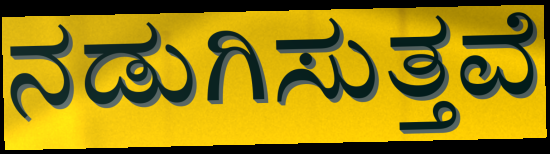
ನಡುಗಿಸುತ್ತವೆ